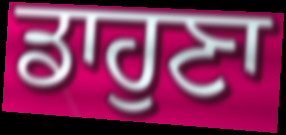
ਡਾਹੁਣਾ